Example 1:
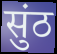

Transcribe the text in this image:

सुंठ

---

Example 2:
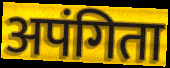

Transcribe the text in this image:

अपंगिता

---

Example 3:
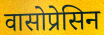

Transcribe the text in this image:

वासोप्रेसिन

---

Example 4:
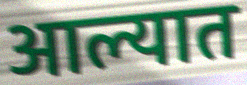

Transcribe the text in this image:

आल्यात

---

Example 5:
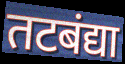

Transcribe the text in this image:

तटबंद्या